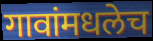
गावांमधलेच